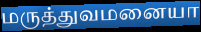
மருத்துவமனையா